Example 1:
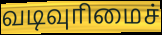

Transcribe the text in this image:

வடிவுரிமைச்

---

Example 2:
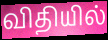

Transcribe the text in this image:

விதியில்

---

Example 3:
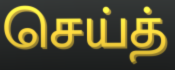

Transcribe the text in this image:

செய்த்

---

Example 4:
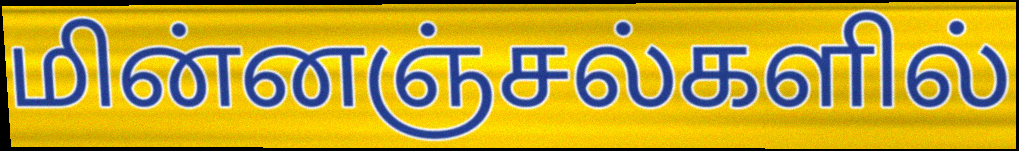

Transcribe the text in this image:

மின்னஞ்சல்களில்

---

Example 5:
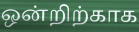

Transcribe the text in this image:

ஒன்றிற்காக